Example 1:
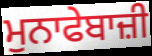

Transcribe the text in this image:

ਮੁਨਾਫੇਬਾਜ਼ੀ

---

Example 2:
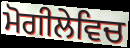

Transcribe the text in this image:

ਮੋਗੀਲੇਵਿਚ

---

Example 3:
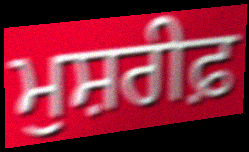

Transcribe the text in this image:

ਮੁਸ਼ਰੀਫ਼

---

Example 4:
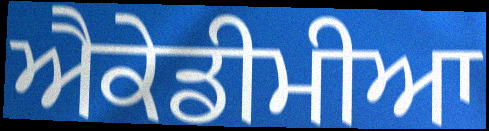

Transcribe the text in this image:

ਐਕੇਡੀਮੀਆ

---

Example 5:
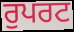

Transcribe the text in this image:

ਰੁਪਰਟ